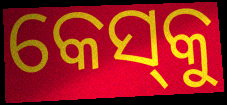
କେସ୍‌କୁ